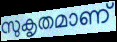
സുകൃതമാണ്